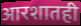
आरशातही